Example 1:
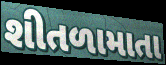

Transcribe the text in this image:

શીતળામાતા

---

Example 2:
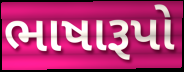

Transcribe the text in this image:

ભાષારૂપો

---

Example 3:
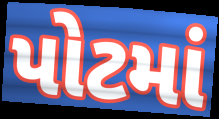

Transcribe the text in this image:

પોટમાં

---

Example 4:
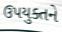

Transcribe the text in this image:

ઉપયુક્તને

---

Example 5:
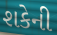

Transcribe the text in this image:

શકેની